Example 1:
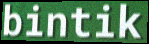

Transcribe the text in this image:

bintik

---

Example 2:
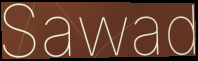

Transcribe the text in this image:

Sawad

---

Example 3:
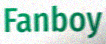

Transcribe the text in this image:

Fanboy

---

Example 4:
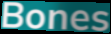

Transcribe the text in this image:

Bones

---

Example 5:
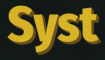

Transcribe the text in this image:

Syst